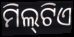
ମିଲ୍‌ଟିଏ